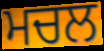
ਮਚਲ